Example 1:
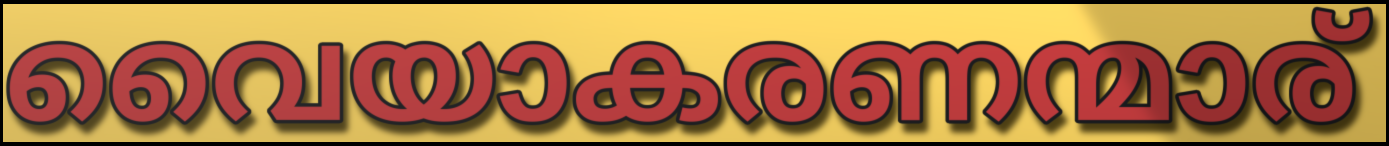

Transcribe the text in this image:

വൈയാകരണന്മാര്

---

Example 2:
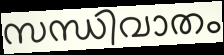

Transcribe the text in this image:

സന്ധിവാതം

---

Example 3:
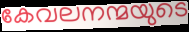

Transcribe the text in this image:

കേവലനന്മയുടെ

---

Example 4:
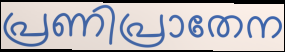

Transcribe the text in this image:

പ്രണിപ്രാതേന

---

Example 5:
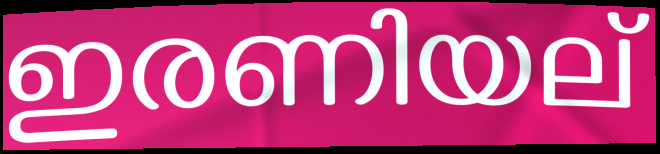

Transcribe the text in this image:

ഇരണിയല്